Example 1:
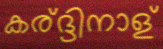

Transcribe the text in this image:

കര്ദ്ദിനാള്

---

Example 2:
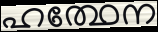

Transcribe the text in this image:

ഹത്ഥേന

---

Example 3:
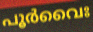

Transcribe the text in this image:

പൂർവൈഃ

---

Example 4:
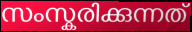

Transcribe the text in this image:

സംസ്കരിക്കുന്നത്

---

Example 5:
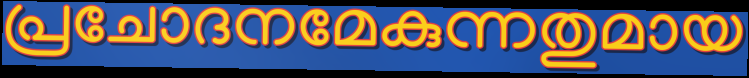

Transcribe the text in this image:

പ്രചോദനമേകുന്നതുമായ